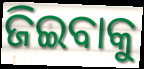
ଜିଇବାକୁ